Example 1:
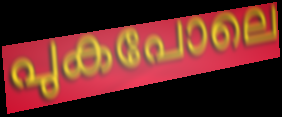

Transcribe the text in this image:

പുകപോലെ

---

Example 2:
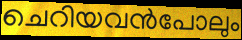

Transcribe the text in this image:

ചെറിയവൻപോലും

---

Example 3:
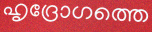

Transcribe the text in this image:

ഹൃദ്രോഗത്തെ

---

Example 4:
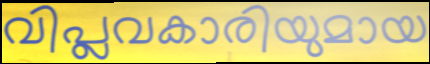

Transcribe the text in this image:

വിപ്ലവകാരിയുമായ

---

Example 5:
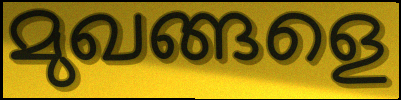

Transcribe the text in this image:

മുഖങ്ങളെ